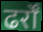
ढर्रों